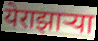
येराझाऱ्या